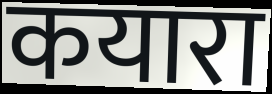
कयारा